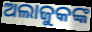
ଅଲାଜୁକଙ୍କ